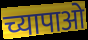
च्यापाओ